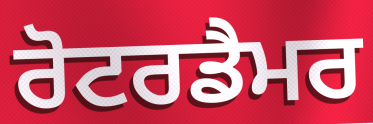
ਰੋਟਰਡੈਮਰ